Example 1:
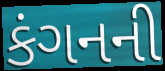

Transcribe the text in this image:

કંગનની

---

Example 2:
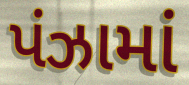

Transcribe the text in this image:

પંઝામાં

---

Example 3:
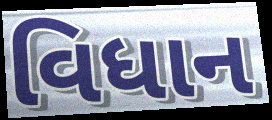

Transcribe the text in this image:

વિધાન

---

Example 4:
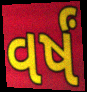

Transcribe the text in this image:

વર્ષં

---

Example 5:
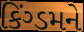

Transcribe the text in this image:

કિંગ્ડમને